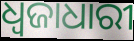
ଧ୍ଵଜାଧାରୀ